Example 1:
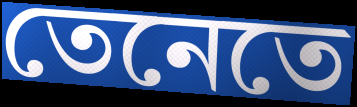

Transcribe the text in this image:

তেনেতে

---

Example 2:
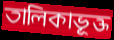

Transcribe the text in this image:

তালিকাভূক্ত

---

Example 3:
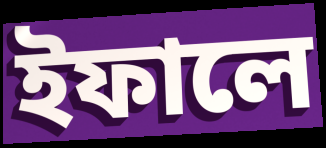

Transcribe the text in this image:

ইফালে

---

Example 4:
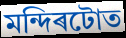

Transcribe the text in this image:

মন্দিৰটোত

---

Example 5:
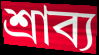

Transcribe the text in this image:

শ্ৰাব্য